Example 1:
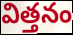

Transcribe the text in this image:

విత్తనం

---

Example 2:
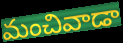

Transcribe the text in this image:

మంచివాడా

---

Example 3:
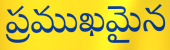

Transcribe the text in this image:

ప్రముఖమైన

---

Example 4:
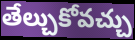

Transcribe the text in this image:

తేల్చుకోవచ్చు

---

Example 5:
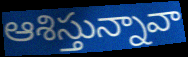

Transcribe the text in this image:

ఆశిస్తున్నావా